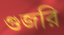
গুজরি